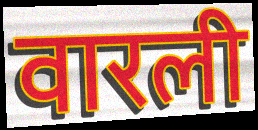
वारली